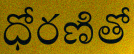
ధోరణితో